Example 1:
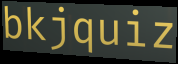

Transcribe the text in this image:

bkjquiz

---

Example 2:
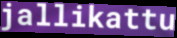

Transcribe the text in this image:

jallikattu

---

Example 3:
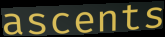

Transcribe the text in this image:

ascents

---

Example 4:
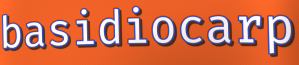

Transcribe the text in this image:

basidiocarp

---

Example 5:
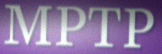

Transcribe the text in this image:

MPTP